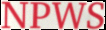
NPWS